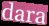
dara